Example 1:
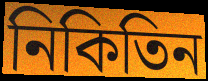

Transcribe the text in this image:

নিকিতিন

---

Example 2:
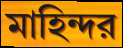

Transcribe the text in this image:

মাহিন্দর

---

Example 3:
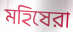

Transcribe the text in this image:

মহিষেরা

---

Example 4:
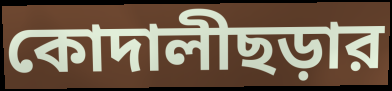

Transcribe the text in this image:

কোদালীছড়ার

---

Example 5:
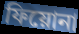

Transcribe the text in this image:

ফিয়োনা